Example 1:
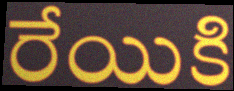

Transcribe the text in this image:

రేయికి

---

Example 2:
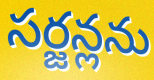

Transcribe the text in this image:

సర్జన్లను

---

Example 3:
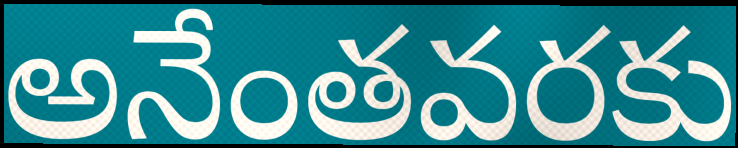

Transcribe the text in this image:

అనేంతవరకు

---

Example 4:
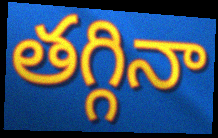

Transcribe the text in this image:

తగ్గినా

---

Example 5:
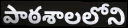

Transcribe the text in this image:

పాఠశాలలోని